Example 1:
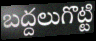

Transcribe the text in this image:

బద్దలుగొట్టి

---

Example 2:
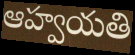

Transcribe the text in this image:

ఆహ్వయతి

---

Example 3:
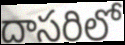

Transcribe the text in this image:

దాసరిలో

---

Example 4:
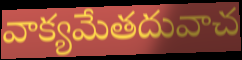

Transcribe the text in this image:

వాక్యమేతదువాచ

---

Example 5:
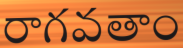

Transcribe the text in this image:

రాగవతాం